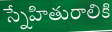
స్నేహితురాలికి